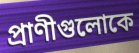
প্রাণীগুলোকে